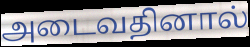
அடைவதினால்